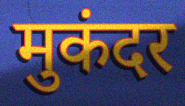
मुकंदर